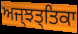
ਅਜ੍ਝਤ੍ਤਿਕਾ